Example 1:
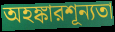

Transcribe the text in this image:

অহঙ্কারশূন্যতা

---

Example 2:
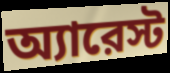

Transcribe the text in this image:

অ্যারেস্ট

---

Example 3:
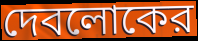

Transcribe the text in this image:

দেবলোকের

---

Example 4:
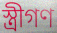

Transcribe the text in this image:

স্ত্রীগণ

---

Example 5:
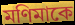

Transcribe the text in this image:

মণিমাকে